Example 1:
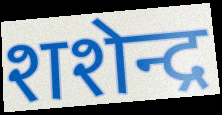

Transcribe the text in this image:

शशेन्द्र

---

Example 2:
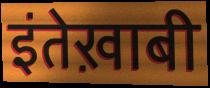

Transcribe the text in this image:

इंतेख़ाबी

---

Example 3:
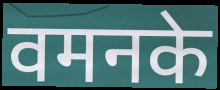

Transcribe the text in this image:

वमनके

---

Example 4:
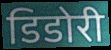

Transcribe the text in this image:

डिडोरी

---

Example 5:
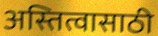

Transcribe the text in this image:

अस्तित्वासाठी